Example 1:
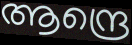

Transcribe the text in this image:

ആന്ദ്രെ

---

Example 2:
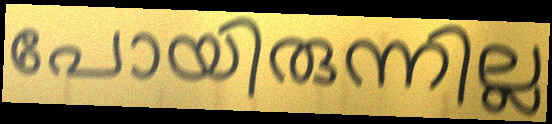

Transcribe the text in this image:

പോയിരുന്നില്ല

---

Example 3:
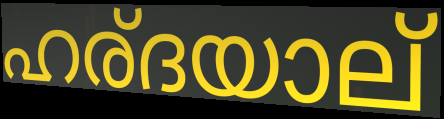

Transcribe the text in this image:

ഹര്ദയാല്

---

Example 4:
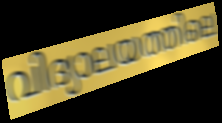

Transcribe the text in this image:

വിദ്യാലയത്തിലെ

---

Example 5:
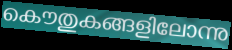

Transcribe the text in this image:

കൌതുകങ്ങളിലോന്നു